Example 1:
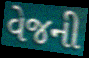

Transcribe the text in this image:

વેજની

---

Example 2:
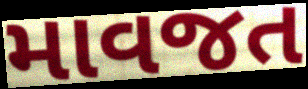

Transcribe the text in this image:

માવજત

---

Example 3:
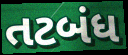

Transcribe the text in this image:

તટબંધ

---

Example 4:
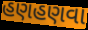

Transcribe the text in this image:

હણહણવા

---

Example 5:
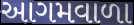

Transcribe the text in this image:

આગમવાળા